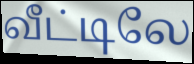
வீட்டிலே